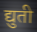
द्युती